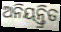
ଅନିୟନ୍ତ୍ରିତ